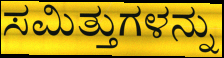
ಸಮಿತ್ತುಗಳನ್ನು